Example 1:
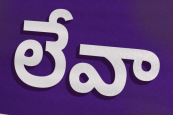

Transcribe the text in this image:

లేవా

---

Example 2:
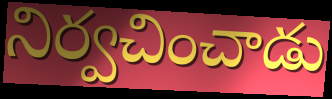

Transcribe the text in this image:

నిర్వచించాడు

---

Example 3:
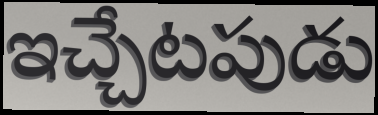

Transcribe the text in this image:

ఇచ్చేటపుడు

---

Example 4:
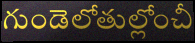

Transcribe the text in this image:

గుండెలోతుల్లోంచీ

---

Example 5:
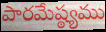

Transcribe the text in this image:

పారమేష్ఠ్యము